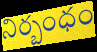
నిర్బంధం